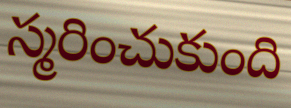
స్మరించుకుంది